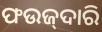
ଫଉଜ୍‌ଦାରି